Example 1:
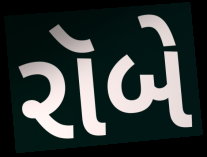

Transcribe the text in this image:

રૉબે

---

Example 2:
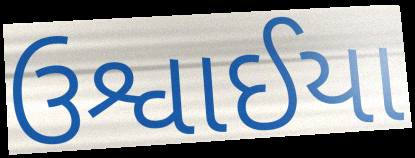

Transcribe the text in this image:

ઉશ્વાઈયા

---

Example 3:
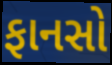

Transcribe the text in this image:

ફાનસો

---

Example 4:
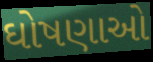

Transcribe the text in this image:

ઘોષણાઓ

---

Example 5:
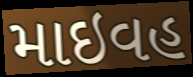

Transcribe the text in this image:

માઇવહ